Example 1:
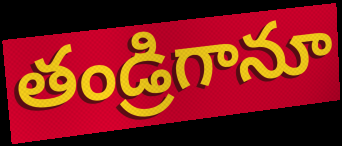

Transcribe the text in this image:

తండ్రిగానూ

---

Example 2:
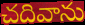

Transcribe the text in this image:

చదివాను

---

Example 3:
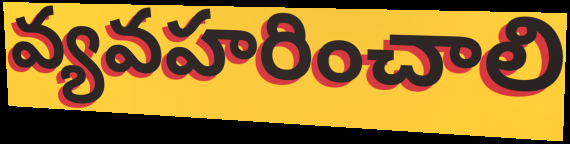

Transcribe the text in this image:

వ్యవహరించాలి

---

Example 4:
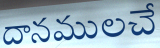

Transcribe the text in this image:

దానములచే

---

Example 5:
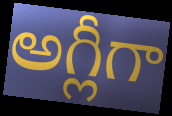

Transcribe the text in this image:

అగ్లీగా